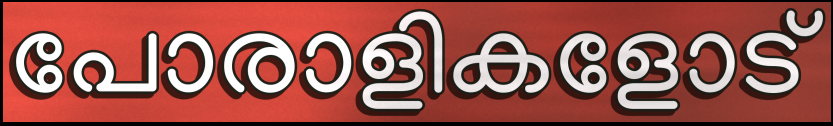
പോരാളികളോട്